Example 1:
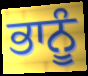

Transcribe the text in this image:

ਭਾਨੂੰ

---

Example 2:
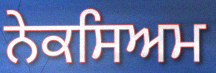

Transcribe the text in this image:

ਨੇਕਸਿਅਮ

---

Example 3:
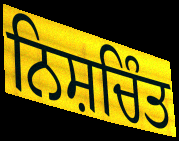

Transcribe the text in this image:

ਨਿਸ਼ਚਿੰਤ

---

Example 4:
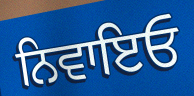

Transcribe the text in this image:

ਨਿਵਾਇਓ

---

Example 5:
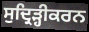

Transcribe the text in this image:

ਸੁਦ੍ਰਿੜ੍ਹੀਕਰਨ